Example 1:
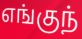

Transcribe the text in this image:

எங்குந்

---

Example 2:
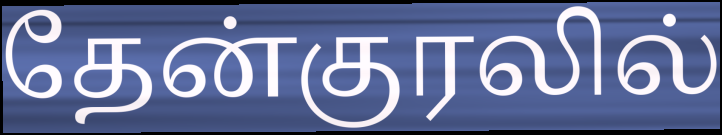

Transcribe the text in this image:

தேன்குரலில்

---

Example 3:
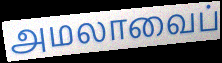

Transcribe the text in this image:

அமலாவைப்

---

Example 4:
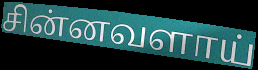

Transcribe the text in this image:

சின்னவளாய்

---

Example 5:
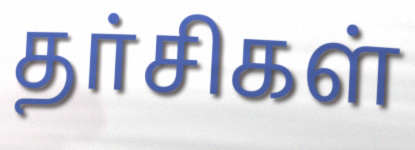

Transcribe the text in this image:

தர்சிகள்